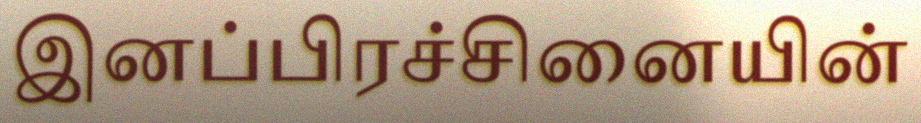
இனப்பிரச்சினையின்